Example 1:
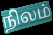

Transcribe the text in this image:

நிலம்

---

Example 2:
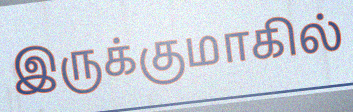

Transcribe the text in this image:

இருக்குமாகில்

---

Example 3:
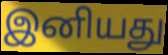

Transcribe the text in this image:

இனியது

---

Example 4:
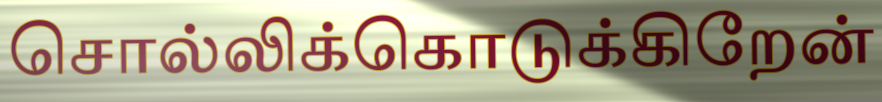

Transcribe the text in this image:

சொல்லிக்கொடுக்கிறேன்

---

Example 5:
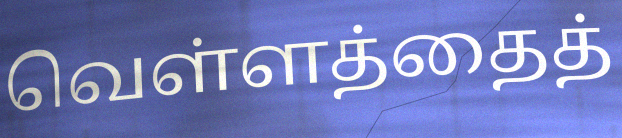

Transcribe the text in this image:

வெள்ளத்தைத்